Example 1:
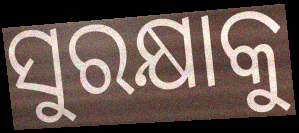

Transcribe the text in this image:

ସୁରକ୍ଷାକୁ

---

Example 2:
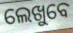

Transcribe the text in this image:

ଲେଖୁବେ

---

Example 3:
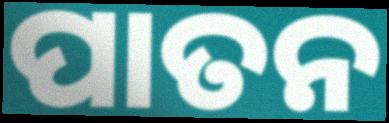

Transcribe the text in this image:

ପାତନ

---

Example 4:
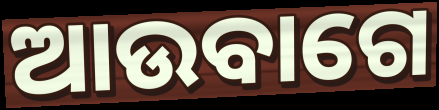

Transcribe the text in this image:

ଆଉବାଗେ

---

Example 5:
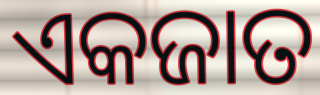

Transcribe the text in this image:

ଏକଜାତ